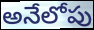
అనేలోపు